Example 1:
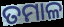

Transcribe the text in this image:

ତମାଳ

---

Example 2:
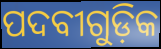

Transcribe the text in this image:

ପଦବୀଗୁଡ଼ିକ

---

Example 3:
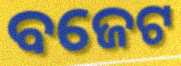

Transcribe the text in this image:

ବଜେଟ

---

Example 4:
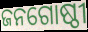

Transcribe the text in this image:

ଜନଗୋଷ୍ଠୀ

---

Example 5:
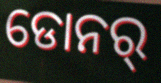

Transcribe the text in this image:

ଡୋନର୍